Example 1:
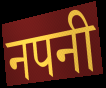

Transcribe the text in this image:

नपनी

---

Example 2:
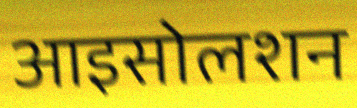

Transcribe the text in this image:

आइसोलशन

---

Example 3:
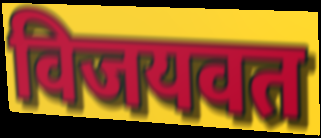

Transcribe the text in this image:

विजयवत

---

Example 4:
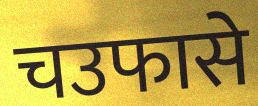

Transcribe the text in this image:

चउफासे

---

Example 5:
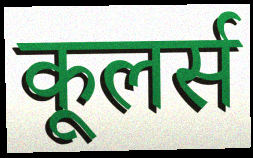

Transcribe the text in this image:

कूलर्स